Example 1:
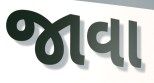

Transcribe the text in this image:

જાવા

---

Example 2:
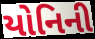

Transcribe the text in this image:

યોનિની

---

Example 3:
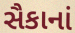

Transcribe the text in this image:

સૈકાનાં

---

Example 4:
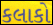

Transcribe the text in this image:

કલાકો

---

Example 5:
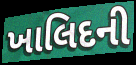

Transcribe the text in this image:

ખાલિદની